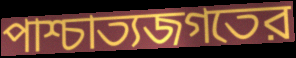
পাশ্চাত্যজগতের